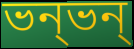
ভন্ভন্